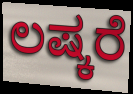
ಲಷ್ಕರೆ